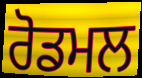
ਰੋਡਮਲ